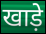
खाड़े